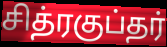
சித்ரகுப்தர்